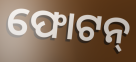
ଫୋଟନ୍